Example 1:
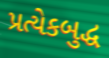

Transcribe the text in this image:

પ્રત્યેકબુદ્ધ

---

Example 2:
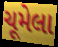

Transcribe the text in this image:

ચૂમેલા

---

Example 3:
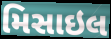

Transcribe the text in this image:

મિસાઇલ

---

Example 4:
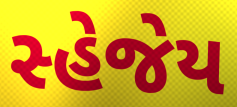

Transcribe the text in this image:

સ્હેજેય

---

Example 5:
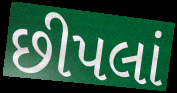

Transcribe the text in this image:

છીપલાં